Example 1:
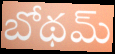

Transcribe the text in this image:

బోథమ్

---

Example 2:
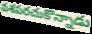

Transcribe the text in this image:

వశపరచుకొన్నాడు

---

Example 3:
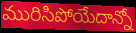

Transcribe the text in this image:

మురిసిపోయేదాన్నో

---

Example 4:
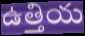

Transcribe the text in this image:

ఉత్తియ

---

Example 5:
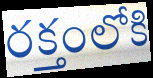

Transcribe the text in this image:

రక్తంలోకి